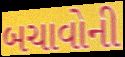
બચાવોની